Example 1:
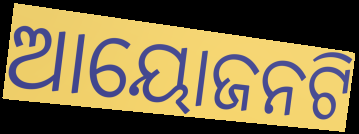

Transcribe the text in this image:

ଆୟୋଜନଟି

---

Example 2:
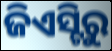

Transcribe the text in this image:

ଜିଏସ୍ଟିରୁ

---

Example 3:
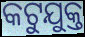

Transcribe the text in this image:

କଟୁଯୁକ୍ତ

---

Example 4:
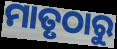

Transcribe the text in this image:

ମାତୃଠାରୁ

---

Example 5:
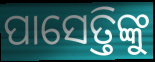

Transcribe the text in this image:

ପାସେତ୍ତିଙ୍କୁ